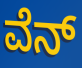
ವೆನ್